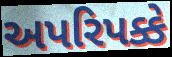
અપરિપક્કે